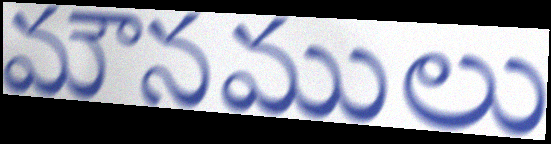
మౌనములు